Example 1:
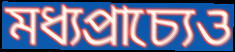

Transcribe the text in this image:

মধ্যপ্রাচ্যেও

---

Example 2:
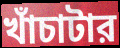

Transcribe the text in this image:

খাঁচাটার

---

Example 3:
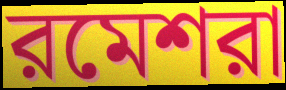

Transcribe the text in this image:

রমেশরা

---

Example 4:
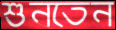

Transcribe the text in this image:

শুনতেন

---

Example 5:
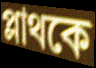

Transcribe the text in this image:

প্লাথকে